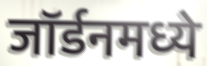
जॉर्डनमध्ये